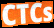
CTCs